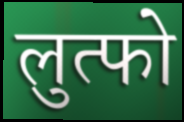
लुत्फो